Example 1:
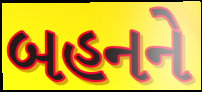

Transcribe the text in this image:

બહનને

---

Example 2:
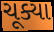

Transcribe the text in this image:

ચૂક્યા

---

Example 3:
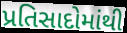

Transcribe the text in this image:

પ્રતિસાદોમાંથી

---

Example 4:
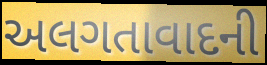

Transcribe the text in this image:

અલગતાવાદની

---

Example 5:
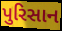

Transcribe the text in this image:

પુરિસાન